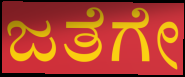
ಜತೆಗೇ